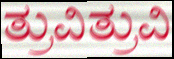
ತ್ರುವಿತ್ರುವಿ